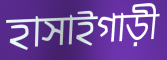
হাসাইগাড়ী